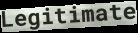
Legitimate